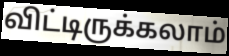
விட்டிருக்கலாம்